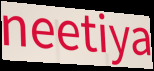
neetiya